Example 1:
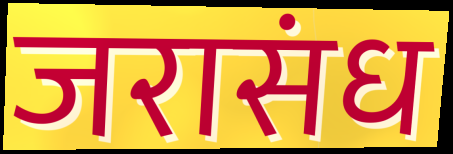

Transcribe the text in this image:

जरासंध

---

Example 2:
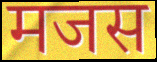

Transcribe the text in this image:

मजस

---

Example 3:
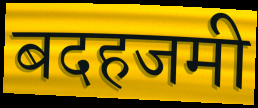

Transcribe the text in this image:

बदहजमी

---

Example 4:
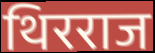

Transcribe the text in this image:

थिरराज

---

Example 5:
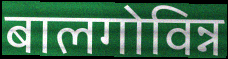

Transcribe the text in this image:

बालगोविन्न